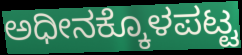
ಅಧೀನಕ್ಕೊಳಪಟ್ಟ